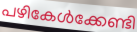
പഴികേൾക്കേണ്ടി